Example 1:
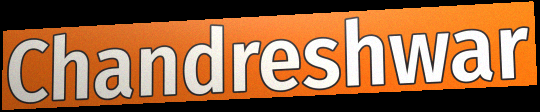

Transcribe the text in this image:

Chandreshwar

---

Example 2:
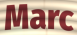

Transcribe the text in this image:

Marc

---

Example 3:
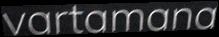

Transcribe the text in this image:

vartamana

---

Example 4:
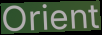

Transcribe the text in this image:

Orient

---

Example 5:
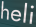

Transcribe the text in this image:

heli